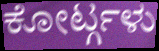
ಕೋರ್ಟ್ಗಳು